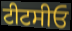
ਟੀਟਸੀਓ